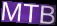
MTB